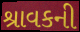
શ્રાવકની